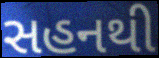
સહનથી